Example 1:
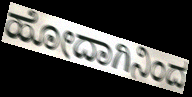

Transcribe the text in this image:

ಹೋದಾಗಿನಿಂದ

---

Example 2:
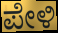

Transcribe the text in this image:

ಪೇಳಿ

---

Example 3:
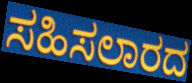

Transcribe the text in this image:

ಸಹಿಸಲಾರದ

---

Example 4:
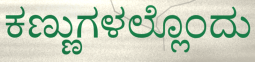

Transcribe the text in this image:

ಕಣ್ಣುಗಳಲ್ಲೊಂದು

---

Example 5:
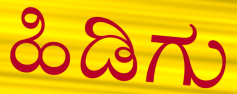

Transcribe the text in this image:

ಹಿಡಿಗು